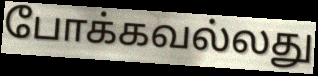
போக்கவல்லது